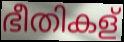
ഭീതികള്